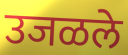
उजळले